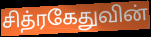
சித்ரகேதுவின்